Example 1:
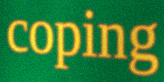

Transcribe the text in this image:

coping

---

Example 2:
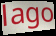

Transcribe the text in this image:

Iago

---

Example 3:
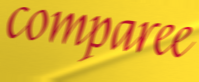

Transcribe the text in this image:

comparee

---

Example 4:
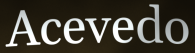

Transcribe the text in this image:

Acevedo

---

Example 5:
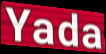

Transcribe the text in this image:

Yada